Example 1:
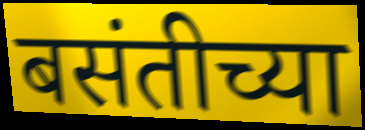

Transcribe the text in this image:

बसंतीच्या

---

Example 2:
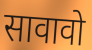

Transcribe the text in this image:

सावावो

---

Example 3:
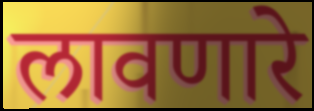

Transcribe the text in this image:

लावणारे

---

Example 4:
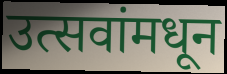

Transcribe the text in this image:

उत्सवांमधून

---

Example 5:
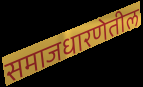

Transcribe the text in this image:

समाजधारणेतील